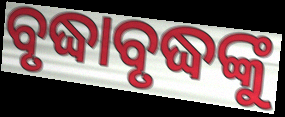
ବୃଦ୍ଧାବୃଦ୍ଧଙ୍କୁ